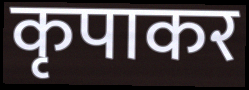
कृपाकर